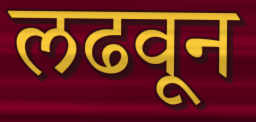
लढवून